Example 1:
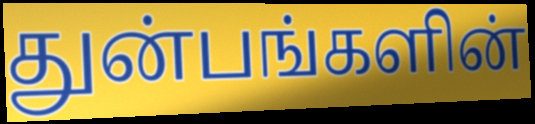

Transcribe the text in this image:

துன்பங்களின்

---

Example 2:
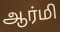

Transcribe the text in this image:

ஆர்மி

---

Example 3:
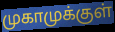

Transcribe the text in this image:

முகாமுக்குள்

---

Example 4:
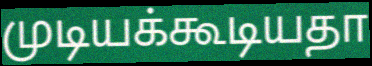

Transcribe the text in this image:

முடியக்கூடியதா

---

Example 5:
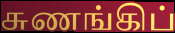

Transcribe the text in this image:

சுணங்கிப்